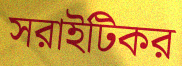
সরাইটিকর